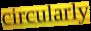
circularly